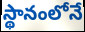
స్థానంలోనే